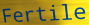
Fertile